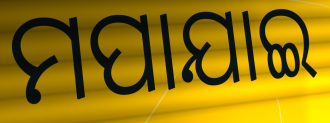
ମପାଯାଇ